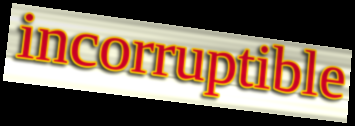
incorruptible